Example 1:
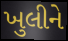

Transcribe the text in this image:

ખુલીને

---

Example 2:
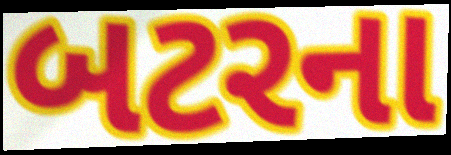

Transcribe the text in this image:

બટરના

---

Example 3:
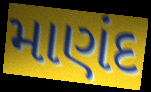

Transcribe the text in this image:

માણંદ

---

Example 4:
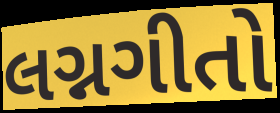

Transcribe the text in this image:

લગ્નગીતો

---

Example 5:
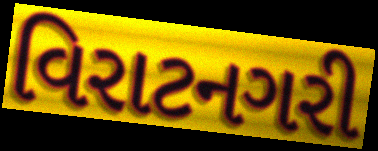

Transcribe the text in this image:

વિરાટનગરી